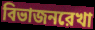
বিভাজনরেখা